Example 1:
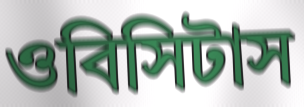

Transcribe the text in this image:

ওবিসিটাস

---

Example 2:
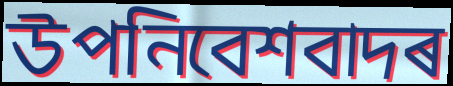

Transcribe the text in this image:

উপনিবেশবাদৰ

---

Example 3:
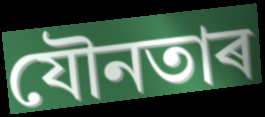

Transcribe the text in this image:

যৌনতাৰ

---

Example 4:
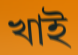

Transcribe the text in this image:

খাই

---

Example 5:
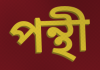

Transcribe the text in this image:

পন্থী